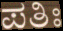
ಪತಿಃ